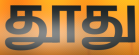
தூது